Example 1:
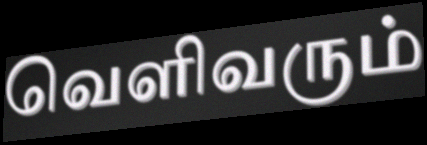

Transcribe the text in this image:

வெளிவரும்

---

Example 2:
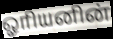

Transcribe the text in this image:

ஓரியனின்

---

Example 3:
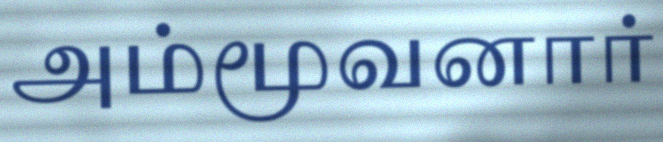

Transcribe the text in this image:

அம்மூவனார்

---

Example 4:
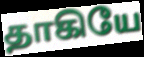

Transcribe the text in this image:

தாகியே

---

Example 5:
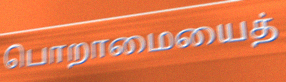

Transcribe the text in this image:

பொறாமையைத்